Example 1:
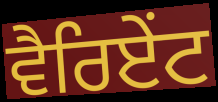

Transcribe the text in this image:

ਵੈਰਿਏਂਟ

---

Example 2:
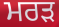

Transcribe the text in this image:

ਮਰੜ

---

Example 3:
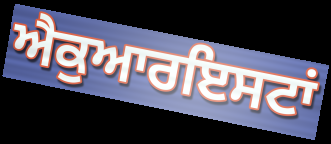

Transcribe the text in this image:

ਐਕੁਆਰਇਸਟਾਂ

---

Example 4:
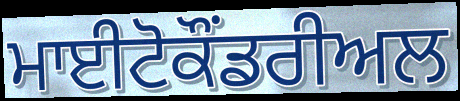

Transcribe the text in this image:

ਮਾਈਟੋਕੌਂਡਰੀਅਲ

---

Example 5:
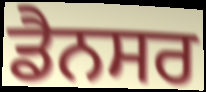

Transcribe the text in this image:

ਡੈਨਸਰ